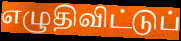
எழுதிவிட்டுப்